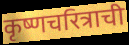
कृष्णचरित्राची